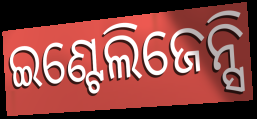
ଇଣ୍ଟେଲିଜେନ୍ସି